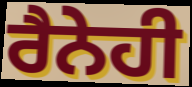
ਰੈਨੇਹੀ